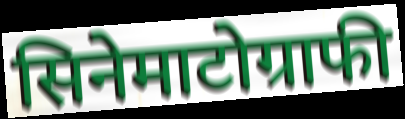
सिनेमाटोग्राफी